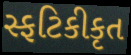
સ્ફટિકીકૃત